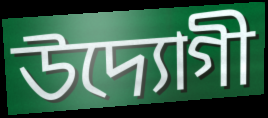
উদ্যোগী